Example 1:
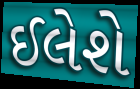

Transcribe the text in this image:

ઈલેશે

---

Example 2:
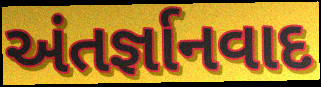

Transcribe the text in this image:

અંતર્જ્ઞાનવાદ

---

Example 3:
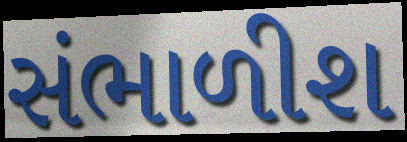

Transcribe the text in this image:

સંભાળીશ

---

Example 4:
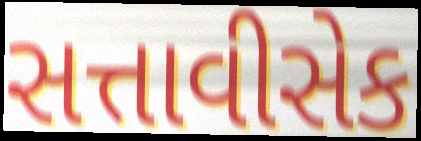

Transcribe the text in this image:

સત્તાવીસેક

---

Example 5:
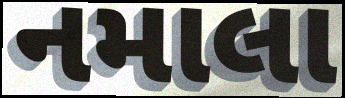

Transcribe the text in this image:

નમાલા